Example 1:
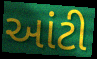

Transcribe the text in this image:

આંટી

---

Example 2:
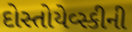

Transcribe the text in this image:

દોસ્તોયેવ્સ્કીની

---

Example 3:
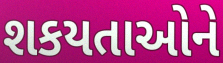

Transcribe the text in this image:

શકયતાઓને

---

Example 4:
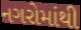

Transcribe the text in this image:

નગરોમાંથી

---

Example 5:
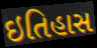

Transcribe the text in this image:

ઇતિહાસ